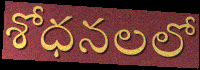
శోధనలలో